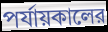
পর্যায়কালের